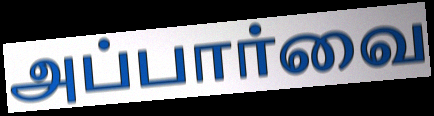
அப்பார்வை